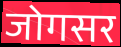
जोगसर